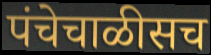
पंचेचाळीसच